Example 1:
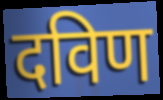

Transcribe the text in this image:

दविण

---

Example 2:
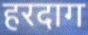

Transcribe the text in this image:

हरदाग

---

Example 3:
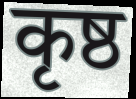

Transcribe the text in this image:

कृष्ठ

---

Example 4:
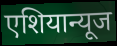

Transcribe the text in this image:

एशियान्यूज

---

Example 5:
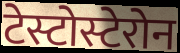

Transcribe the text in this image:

टेस्‍टोस्‍टेरोन